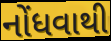
નોંધવાથી